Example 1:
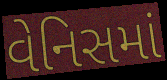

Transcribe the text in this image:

વેનિસમાં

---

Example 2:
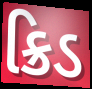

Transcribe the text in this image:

ક્રિડ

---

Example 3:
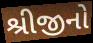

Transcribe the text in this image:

શ્રીજીનો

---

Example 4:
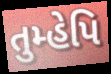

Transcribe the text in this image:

તુમ્હેપિ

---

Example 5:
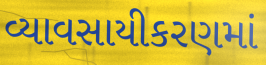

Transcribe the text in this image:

વ્યાવસાયીકરણમાં